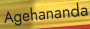
Agehananda